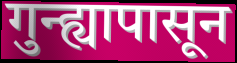
गुन्ह्यापासून